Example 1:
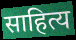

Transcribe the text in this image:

साहित्य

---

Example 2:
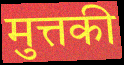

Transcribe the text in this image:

मुत्तकी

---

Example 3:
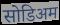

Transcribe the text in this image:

सोडिअम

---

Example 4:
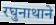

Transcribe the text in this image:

रघुनाथाने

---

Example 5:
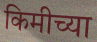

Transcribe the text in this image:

किमीच्या